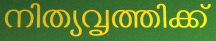
നിത്യവൃത്തിക്ക്